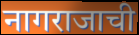
नागराजाची